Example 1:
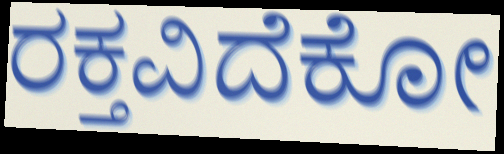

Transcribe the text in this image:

ರಕ್ತವಿದೆಕೋ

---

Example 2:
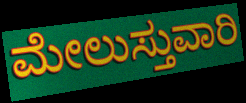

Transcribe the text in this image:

ಮೇಲುಸ್ತುವಾರಿ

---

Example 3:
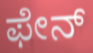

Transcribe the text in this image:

ಫೇನ್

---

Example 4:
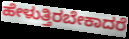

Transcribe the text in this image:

ಹೇಳುತ್ತಿರಬೇಕಾದರೆ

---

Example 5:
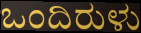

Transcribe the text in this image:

ಒಂದಿರುಳು